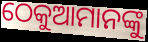
ଠେକୁଆମାନଙ୍କୁ